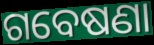
ଗବେଷଣା